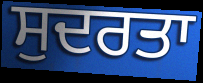
ਸੁਦਰਤਾ